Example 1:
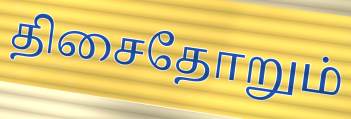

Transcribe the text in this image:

திசைதோறும்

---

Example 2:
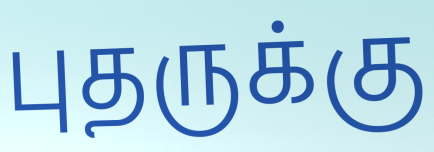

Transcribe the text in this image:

புதருக்கு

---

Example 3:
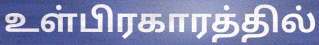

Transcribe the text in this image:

உள்பிரகாரத்தில்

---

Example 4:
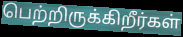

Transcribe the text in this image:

பெற்றிருக்கிறீர்கள்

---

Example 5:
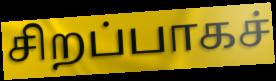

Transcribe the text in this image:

சிறப்பாகச்